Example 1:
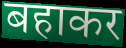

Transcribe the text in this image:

बहाकर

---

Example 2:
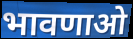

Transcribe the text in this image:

भावणाओ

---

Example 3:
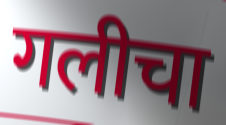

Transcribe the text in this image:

गलीचा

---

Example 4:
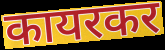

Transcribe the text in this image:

कायरकर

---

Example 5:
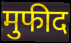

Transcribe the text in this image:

मुफीद